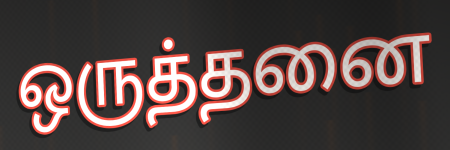
ஒருத்தனை